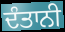
ਦੰਤਾਨੀ